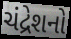
ચંદ્રેશનો